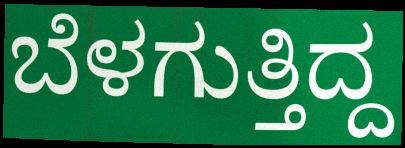
ಬೆಳಗುತ್ತಿದ್ದ